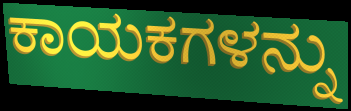
ಕಾಯಕಗಳನ್ನು